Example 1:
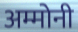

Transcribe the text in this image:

अम्मोनी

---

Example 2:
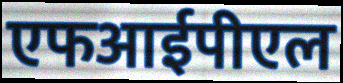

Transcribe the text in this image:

एफआईपीएल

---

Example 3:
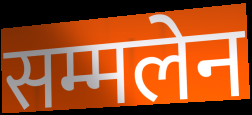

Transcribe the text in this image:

सम्मलेन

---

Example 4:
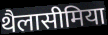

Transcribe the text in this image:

थैलासीमिया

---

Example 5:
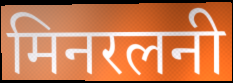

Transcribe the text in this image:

मिनरलनी